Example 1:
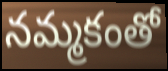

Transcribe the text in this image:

నమ్మకంతో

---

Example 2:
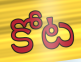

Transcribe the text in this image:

కోట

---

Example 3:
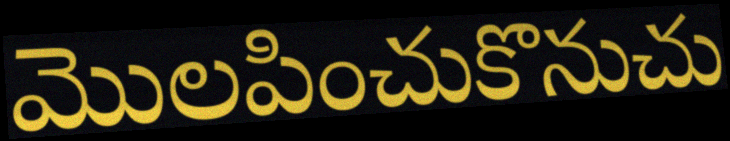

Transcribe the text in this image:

మొలపించుకొనుచు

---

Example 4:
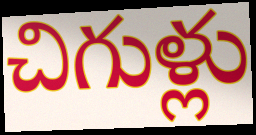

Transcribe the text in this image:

చిగుళ్లు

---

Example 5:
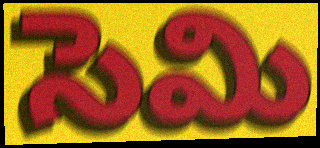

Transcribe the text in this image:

సెమి